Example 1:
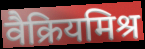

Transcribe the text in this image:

वैक्रियमिश्र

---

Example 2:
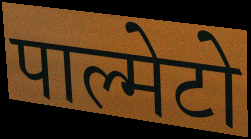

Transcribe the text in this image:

पाल्मेटो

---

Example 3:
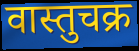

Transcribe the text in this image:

वास्तुचक्र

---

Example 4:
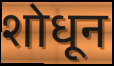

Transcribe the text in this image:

शोधून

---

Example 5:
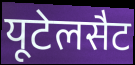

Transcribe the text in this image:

यूटेलसैट